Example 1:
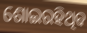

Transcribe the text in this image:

ଶୋଇରହିଥିବ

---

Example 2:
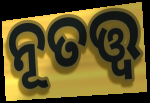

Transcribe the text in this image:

ନୂତତ୍ତ୍ବ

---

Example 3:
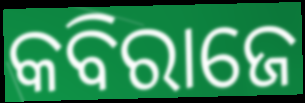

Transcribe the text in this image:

କବିରାଜେ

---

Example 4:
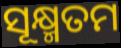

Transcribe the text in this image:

ସୂକ୍ଷ୍ମତମ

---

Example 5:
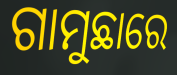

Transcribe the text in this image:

ଗାମୁଛାରେ